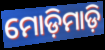
ମୋଡ଼ିମାଡ଼ି